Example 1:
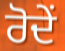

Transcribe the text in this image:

ਰੋਦੇਂ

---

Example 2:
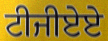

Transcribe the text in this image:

ਟੀਜੀਏਏ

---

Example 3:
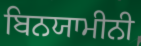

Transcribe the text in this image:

ਬਿਨਯਾਮੀਨੀ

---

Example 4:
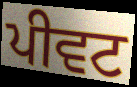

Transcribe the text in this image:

ਪੀਵਟ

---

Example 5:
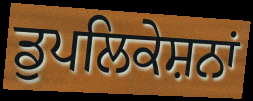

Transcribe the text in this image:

ਡੁਪਲਿਕੇਸ਼ਨਾਂ